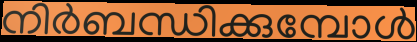
നിർബന്ധിക്കുമ്പോൾ